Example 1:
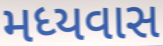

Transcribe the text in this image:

મધ્યવાસ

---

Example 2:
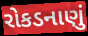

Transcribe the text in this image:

રોકડનાણું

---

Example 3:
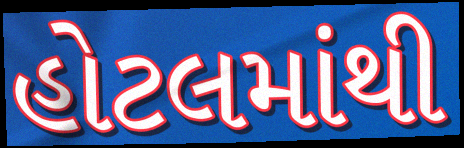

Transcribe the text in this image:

હોટલમાંથી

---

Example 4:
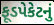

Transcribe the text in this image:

ફૂડપેકેટનું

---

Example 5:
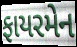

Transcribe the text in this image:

ફાયરમેન